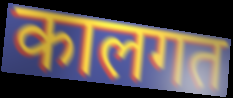
कालगत